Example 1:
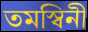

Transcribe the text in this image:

তমস্বিনী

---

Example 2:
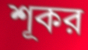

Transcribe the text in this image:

শূকর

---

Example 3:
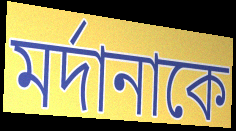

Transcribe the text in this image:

মর্দানাকে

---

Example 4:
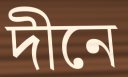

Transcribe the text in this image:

দীনে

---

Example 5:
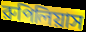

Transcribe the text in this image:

রুপিলিয়াস